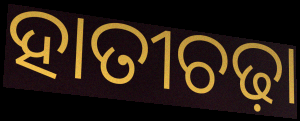
ହାତୀଚଢ଼ା